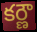
కర్ణౌ